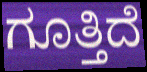
ಗೂತ್ತಿದೆ